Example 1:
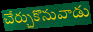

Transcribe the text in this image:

చేర్చుకొనువాడు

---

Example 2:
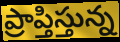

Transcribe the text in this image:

ప్రాప్తిస్తున్న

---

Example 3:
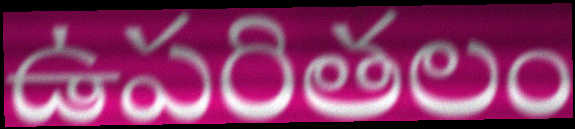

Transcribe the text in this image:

ఉపరితలం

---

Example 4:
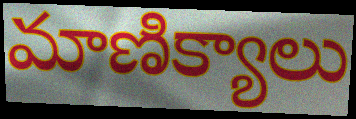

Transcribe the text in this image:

మాణిక్యాలు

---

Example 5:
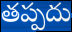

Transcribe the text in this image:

తప్పదు